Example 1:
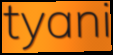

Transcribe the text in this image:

tyani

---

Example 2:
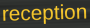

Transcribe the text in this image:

reception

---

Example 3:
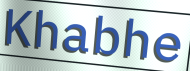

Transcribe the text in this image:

Khabhe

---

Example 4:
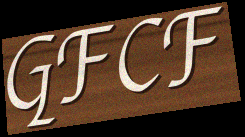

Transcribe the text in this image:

GFCF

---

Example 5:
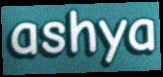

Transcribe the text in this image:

ashya